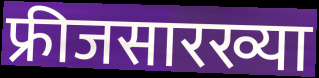
फ्रीजसारख्या